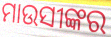
ମାଉସୀଙ୍କର